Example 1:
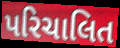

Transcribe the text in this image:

પરિચાલિત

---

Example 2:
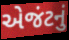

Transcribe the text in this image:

એજંટનું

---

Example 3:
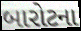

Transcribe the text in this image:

બારોટના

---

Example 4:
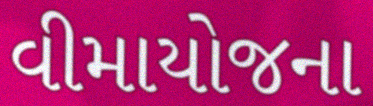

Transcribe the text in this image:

વીમાયોજના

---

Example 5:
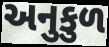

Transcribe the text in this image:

અનુકુળ